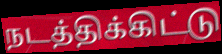
நடத்திக்கிட்டு